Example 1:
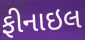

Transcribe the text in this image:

ફીનાઇલ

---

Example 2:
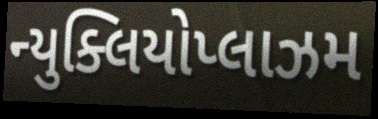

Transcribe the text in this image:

ન્યુક્લિયોપ્લાઝમ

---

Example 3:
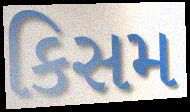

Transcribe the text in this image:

કિસમ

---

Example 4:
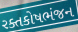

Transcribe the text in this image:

રક્તકોષભંજન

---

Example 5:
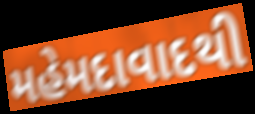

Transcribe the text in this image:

મહેમદાવાદથી